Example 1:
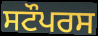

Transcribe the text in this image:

ਸਟੌਪਰਸ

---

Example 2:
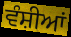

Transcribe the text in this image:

ਵੰਸ਼ੀਆਂ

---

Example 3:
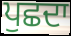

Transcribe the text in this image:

ਪੁਛਦਾ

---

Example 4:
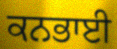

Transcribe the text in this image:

ਕਨਭਾਈ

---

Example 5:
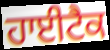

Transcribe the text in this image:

ਹਾਈਟੈਕ